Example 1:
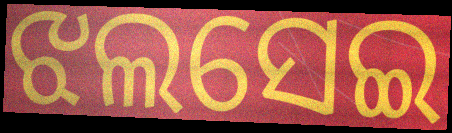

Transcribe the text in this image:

ଝଲସେଇ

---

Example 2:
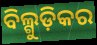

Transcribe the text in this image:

ବିଲ୍ଗୁଡ଼ିକର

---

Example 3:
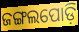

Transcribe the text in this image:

ଜଙ୍ଗଲପୋଡ଼ି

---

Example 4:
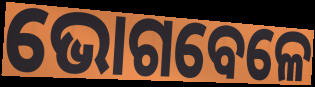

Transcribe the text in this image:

ଭୋଗବେଳେ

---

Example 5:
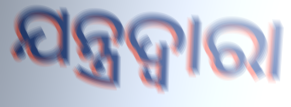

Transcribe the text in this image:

ଯନ୍ତ୍ରଦ୍ଵାରା